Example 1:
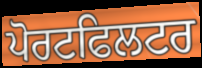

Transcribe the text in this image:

ਪੋਰਟਫਿਲਟਰ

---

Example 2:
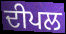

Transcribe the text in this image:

ਦੀਪਲ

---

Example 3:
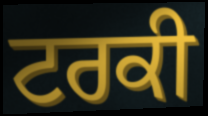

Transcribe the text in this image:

ਟਰਕੀ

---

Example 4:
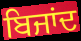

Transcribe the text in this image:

ਬਿਜਾਂਦ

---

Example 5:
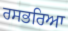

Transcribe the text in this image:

ਰਸਭਰਿਆ